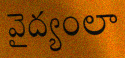
వైద్యంలా